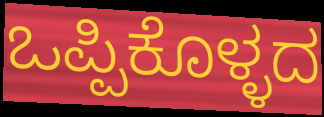
ಒಪ್ಪಿಕೊಳ್ಳದ